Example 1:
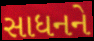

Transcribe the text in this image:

સાધનને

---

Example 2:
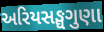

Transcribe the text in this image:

અરિયસઙ્ઘગુણા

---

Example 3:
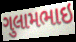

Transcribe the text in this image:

ગુલામભાઇ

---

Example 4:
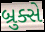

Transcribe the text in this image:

બ્રુક્સે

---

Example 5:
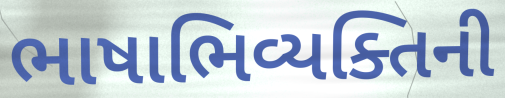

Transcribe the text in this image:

ભાષાભિવ્યક્તિની